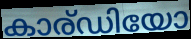
കാര്ഡിയോ